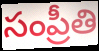
సంప్రీతి